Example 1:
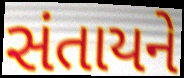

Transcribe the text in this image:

સંતાયને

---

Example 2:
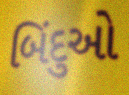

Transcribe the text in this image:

બિંદુઓ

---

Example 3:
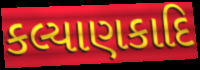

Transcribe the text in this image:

કલ્યાણકાદિ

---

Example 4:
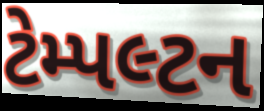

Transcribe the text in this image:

ટેમ્પલ્ટન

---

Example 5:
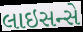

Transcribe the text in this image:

લાઇસન્સે